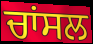
ਚਾਂਸਲ